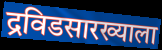
द्रविडसारख्याला